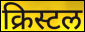
क्रिस्टल